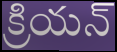
క్రియన్